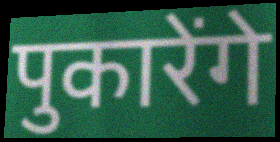
पुकारेंगे